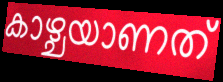
കാഴ്ചയാണത്